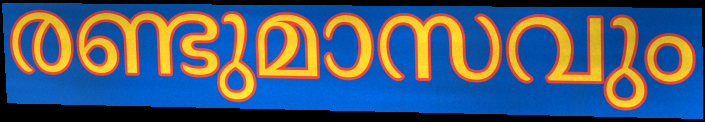
രണ്ടുമാസവും